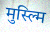
मुस्ल्मि